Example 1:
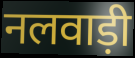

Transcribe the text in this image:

नलवाड़ी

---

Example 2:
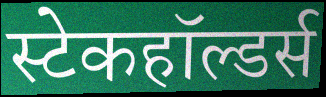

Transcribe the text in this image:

स्टेकहॉल्डर्स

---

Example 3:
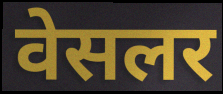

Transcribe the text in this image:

वेसलर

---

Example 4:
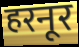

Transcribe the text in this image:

हरनूर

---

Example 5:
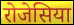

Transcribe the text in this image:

रोजेसिया